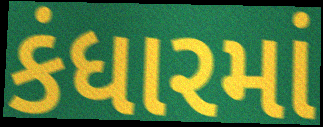
કંધારમાં